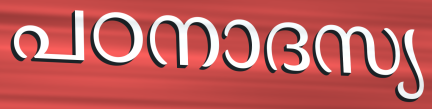
പഠനാദസ്യ